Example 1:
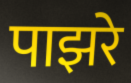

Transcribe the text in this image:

पाझरे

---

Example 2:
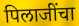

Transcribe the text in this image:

पिलाजींचा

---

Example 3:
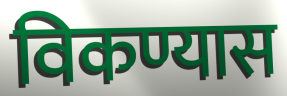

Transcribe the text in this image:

विकण्यास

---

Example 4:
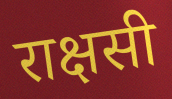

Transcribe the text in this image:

राक्षसी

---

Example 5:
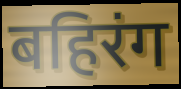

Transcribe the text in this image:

बहिरंग